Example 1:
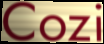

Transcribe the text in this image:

Cozi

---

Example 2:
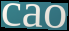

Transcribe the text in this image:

cao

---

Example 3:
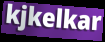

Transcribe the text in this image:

kjkelkar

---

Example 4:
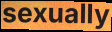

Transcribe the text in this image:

sexually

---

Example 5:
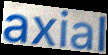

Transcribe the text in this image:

axial